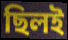
ছিলই